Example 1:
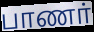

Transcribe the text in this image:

பாணர்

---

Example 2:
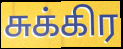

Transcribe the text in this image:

சுக்கிர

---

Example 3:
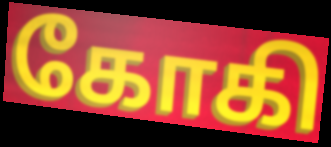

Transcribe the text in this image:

கோகி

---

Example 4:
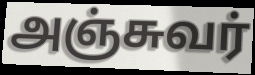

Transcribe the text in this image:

அஞ்சுவர்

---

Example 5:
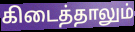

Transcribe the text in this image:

கிடைத்தாலும்